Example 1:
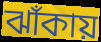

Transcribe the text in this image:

ঝাঁকায়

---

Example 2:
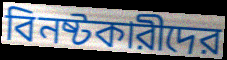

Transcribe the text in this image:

বিনষ্টকারীদের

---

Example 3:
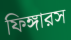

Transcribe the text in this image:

ফিঙ্গারস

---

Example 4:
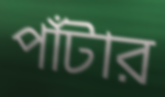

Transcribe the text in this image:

পাঁটার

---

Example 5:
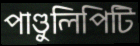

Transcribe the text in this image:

পাণ্ডুলিপিটি